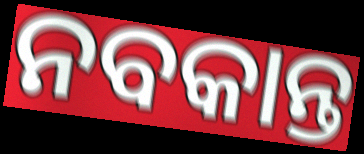
ନବକାନ୍ତ